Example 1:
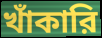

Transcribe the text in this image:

খাঁকারি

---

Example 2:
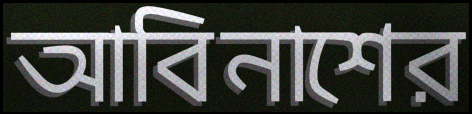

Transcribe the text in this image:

আবিনাশের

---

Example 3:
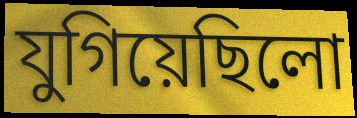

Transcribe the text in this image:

যুগিয়েছিলো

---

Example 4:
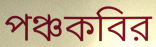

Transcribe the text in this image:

পঞ্চকবির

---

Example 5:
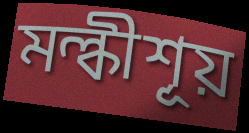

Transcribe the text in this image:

মল্কীশূয়